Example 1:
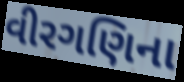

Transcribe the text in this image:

વીરગણિના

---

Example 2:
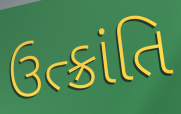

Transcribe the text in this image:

ઉત્ક્રાંતિ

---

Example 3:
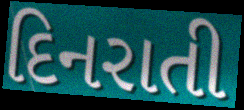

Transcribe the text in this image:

દિનરાતી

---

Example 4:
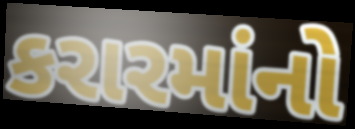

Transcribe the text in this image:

કરારમાંનો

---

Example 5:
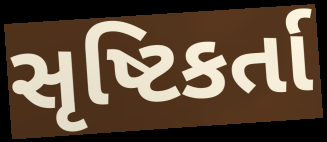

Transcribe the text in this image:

સૃષ્ટિકર્તા